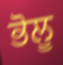
ਭੋਲੂ